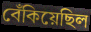
বেঁকিয়েছিল